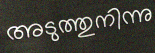
അടുത്തുനിന്നു